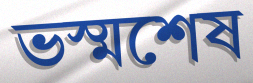
ভস্মশেষ